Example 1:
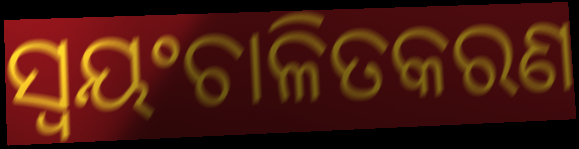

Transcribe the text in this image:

ସ୍ୱୟଂଚାଳିତକରଣ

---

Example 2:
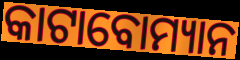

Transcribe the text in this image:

କାଟାବୋମ୍ୟାନ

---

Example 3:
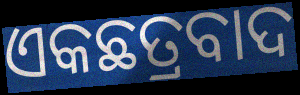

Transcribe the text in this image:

ଏକଛତ୍ରବାଦ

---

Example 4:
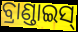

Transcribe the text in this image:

ବ୍ରାଣ୍ଡାଇସ୍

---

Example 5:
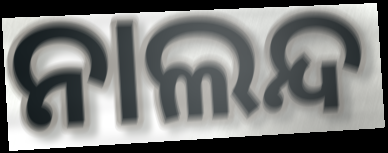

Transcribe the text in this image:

ନାଲନ୍ଦ